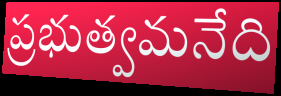
ప్రభుత్వమనేది